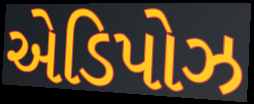
એડિપોઝ